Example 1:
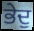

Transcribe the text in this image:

ਭੇਦੁ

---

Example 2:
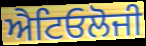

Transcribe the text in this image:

ਐਟਿਓਲੋਜੀ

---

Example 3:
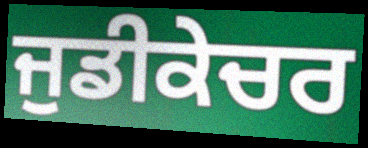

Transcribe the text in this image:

ਜੁਡੀਕੇਚਰ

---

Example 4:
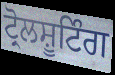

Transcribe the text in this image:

ਟ੍ਰੋਲਸ਼ੂਟਿੰਗ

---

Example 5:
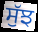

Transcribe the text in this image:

ਸੁੱਝ